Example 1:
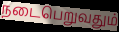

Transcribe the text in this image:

நடைபெறுவதும்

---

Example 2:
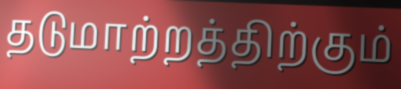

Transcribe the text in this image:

தடுமாற்றத்திற்கும்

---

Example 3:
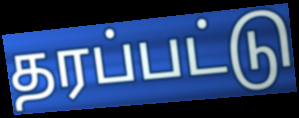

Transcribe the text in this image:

தரப்பட்டு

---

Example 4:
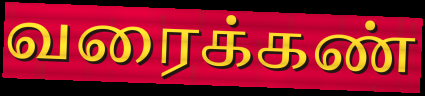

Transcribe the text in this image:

வரைக்கண்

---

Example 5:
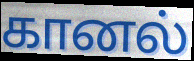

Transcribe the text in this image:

கானல்